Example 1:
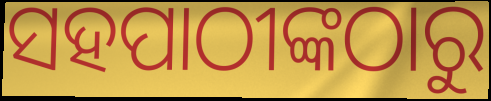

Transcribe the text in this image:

ସହପାଠୀଙ୍କଠାରୁ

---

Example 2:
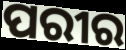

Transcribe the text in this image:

ପରୀର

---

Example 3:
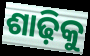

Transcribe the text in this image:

ଶାଢ଼ିକୁ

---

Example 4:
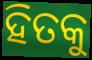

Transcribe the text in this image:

ହିତକୁ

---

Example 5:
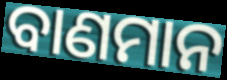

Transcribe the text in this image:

ବାଣମାନ